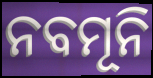
ନବମୂନି